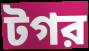
টগর